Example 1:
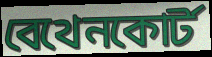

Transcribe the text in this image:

বেথেনকোর্ট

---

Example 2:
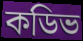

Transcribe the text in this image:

কডিভ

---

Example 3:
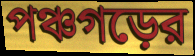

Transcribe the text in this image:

পঞ্চগড়ের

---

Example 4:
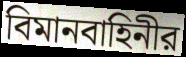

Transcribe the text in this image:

বিমানবাহিনীর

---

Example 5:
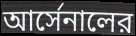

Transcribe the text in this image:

আর্সেনালের